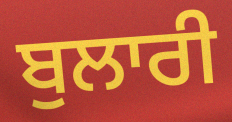
ਬੁਲਾਰੀ